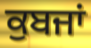
ਕੁਬਜਾਂ